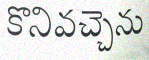
కొనివచ్చెను